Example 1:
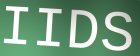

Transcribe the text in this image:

IIDS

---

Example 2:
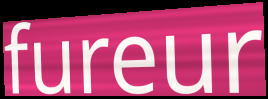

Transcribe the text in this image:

fureur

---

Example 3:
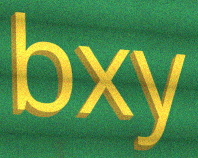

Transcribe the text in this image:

bxy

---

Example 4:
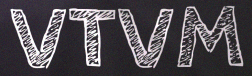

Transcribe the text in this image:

VTVM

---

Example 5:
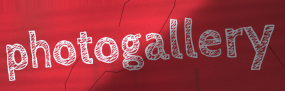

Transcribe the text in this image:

photogallery